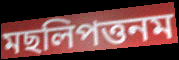
মছলিপত্তনম